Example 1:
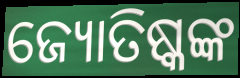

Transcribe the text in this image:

ଜ୍ୟୋତିଷ୍କଙ୍କ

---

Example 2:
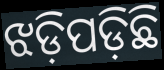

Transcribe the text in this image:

ଝଡ଼ିପଡ଼ିଛି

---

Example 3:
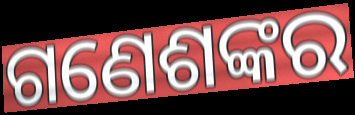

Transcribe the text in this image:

ଗଣେଶଙ୍କର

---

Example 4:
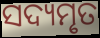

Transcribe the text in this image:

ସଦ୍ୟମୃତ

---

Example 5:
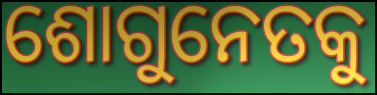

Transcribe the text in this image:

ଶୋଗୁନେତକୁ